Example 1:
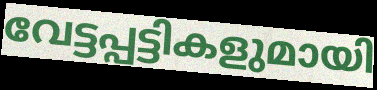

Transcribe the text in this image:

വേട്ടപ്പട്ടികളുമായി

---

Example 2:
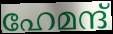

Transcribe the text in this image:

ഹേമന്ദ്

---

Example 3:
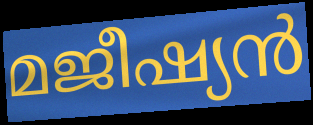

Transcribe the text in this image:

മജീഷ്യൻ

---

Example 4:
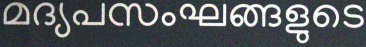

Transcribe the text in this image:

മദ്യപസംഘങ്ങളുടെ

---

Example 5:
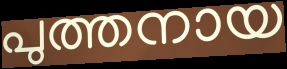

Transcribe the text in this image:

പുത്തനായ